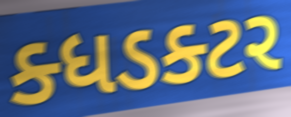
ક્ધડક્ટર